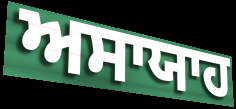
ਅਸਾਯਾਹ